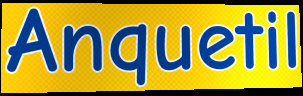
Anquetil